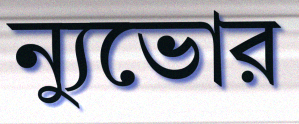
ন্যুভোর